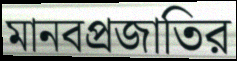
মানবপ্রজাতির